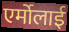
एर्मोलाई